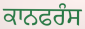
ਕਾਨਫਰੰਸ